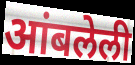
आंबलेली